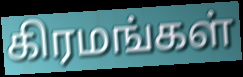
கிரமங்கள்